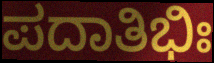
ಪದಾತಿಭಿಃ